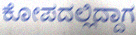
ಕೋಪದಲ್ಲಿದ್ದಾಗ